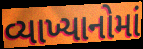
વ્યાખ્યાનોમાં